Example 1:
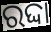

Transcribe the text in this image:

ରଦ୍ଦା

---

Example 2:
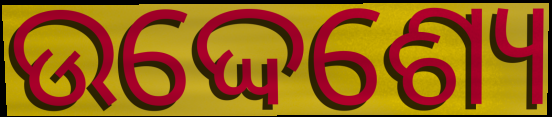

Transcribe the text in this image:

ଉଦ୍ଦେଶ୍ୟେ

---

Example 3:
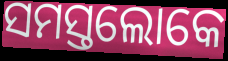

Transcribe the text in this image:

ସମସ୍ତଲୋକେ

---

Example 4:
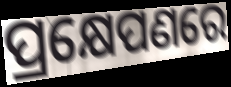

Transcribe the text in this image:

ପ୍ରକ୍ଷେପଣରେ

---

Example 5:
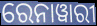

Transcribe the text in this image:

ରେନାୱାରୀ